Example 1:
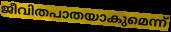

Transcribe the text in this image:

ജീവിതപാതയാകുമെന്ന്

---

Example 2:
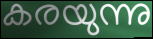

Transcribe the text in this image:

കരയുന്നു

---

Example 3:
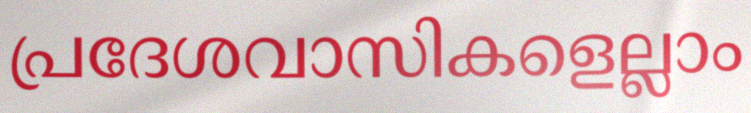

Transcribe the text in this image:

പ്രദേശവാസികളെല്ലാം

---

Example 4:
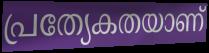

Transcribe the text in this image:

പ്രത്യേകതയാണ്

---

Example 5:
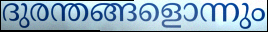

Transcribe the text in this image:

ദുരന്തങ്ങളൊന്നും